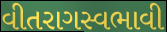
વીતરાગસ્વભાવી